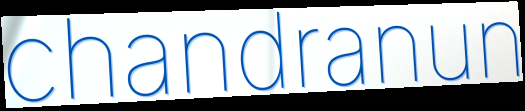
chandranun